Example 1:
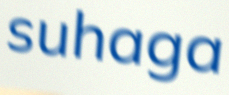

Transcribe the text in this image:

suhaga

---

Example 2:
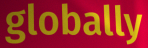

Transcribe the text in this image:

globally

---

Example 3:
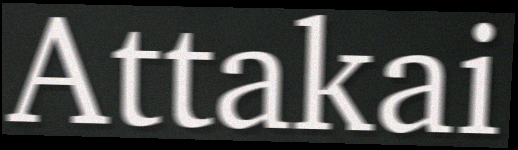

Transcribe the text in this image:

Attakai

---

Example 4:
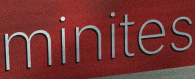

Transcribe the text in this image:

minites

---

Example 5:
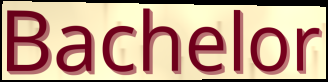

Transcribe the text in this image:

Bachelor